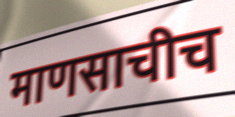
माणसाचीच